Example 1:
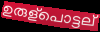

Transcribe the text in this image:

ഉരുള്പൊട്ടല്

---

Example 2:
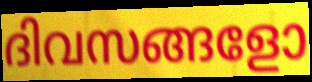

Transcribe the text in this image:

ദിവസങ്ങളോ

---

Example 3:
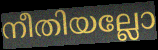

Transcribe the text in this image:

നീതിയല്ലോ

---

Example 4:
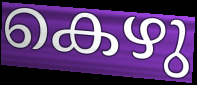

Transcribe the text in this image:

കെഴു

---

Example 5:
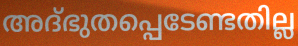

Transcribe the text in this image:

അദ്ഭുതപ്പെടേണ്ടതില്ല